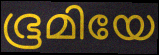
ഭൂമിയേ